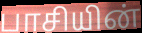
பாசியின்